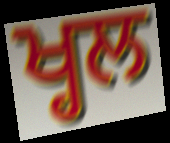
ਖ੍ਹਲ